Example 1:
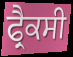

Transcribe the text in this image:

ਫ੍ਰੈਕਸੀ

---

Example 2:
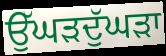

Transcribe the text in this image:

ਉੱਘੜਦੁੱਘੜਾ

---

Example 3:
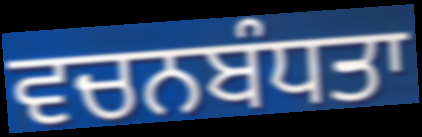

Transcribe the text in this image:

ਵਚਨਬੰਧਤਾ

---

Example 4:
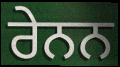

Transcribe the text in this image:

ਰੇਨਨ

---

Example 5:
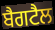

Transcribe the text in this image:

ਬੈਗਟੈਲ